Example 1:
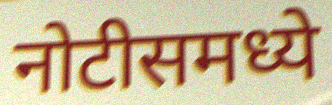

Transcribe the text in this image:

नोटीसमध्ये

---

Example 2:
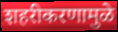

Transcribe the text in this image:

शहरीकरणामुळे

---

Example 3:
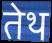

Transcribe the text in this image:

तेथ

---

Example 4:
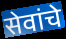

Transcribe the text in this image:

सेवांचे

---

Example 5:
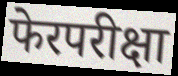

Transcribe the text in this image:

फेरपरीक्षा